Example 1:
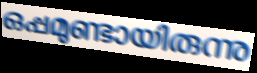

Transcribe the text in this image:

ഒപ്പമുണ്ടായിരുന്നു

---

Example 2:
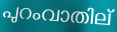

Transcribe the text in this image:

പുറംവാതില്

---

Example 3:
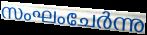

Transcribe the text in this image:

സംഘംചേർന്നു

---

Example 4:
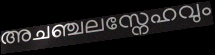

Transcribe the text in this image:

അചഞ്ചലസ്നേഹവും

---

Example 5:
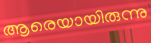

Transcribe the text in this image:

ആരെയായിരുന്നു